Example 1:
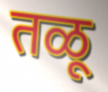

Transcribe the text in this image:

तळू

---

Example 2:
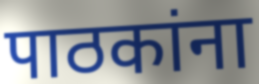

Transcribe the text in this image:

पाठकांना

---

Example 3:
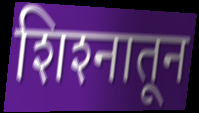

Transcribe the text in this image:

शिश्नातून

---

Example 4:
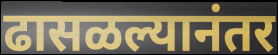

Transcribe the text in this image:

ढासळल्यानंतर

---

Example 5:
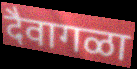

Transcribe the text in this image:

दैवागळा